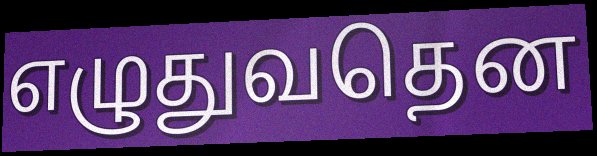
எழுதுவதென